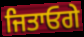
ਜਿਤਾਓਗੇ